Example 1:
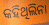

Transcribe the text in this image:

କହିଥିଲିନା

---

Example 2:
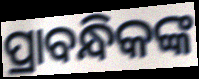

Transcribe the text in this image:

ପ୍ରାବନ୍ଧିକଙ୍କ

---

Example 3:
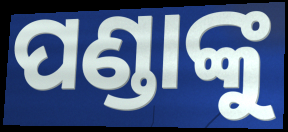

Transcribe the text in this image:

ପଣ୍ଡାଙ୍କୁ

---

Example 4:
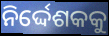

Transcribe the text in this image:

ନିର୍ଦ୍ଦେଶକକୁ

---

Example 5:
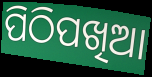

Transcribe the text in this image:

ପିଠିପଖିଆ